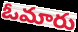
ఓమారు